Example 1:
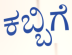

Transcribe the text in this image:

ಕಬ್ಬಿಗೆ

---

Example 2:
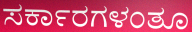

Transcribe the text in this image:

ಸರ್ಕಾರಗಳಂತೂ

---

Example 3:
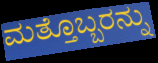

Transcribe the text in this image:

ಮತ್ತೊಬ್ಬರನ್ನು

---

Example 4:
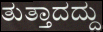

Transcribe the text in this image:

ತುತ್ತಾದದ್ದು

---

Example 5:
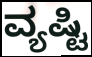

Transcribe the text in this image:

ವ್ಯಷ್ಟಿ